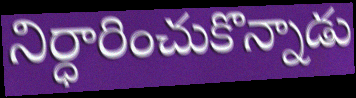
నిర్ధారించుకొన్నాడు